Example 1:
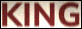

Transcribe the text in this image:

KING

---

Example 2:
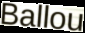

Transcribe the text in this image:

Ballou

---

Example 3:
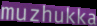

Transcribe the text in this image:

muzhukka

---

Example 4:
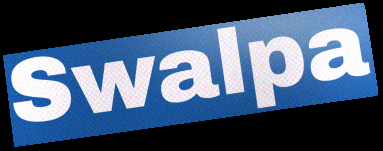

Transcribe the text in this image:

Swalpa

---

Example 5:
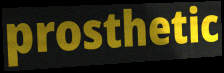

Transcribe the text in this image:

prosthetic